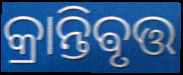
କ୍ରାନ୍ତିଵୃତ୍ତ